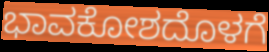
ಭಾವಕೋಶದೊಳಗೆ